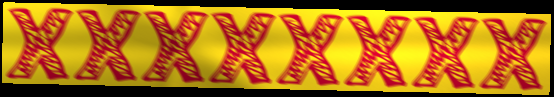
xxxxxxxx